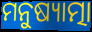
ମନୁଷ୍ୟାତ୍ମା